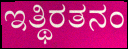
ಇತ್ಥಿರತನಂ